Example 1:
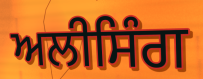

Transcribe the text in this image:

ਅਲੀਸਿੰਗ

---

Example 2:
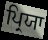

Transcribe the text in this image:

ਪ੍ਰਿਯਾ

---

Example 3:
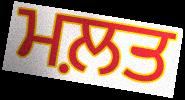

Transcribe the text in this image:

ਮਲ਼ਤ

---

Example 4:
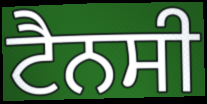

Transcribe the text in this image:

ਟੈਨਸੀ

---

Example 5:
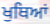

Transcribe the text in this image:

ਖੁਥਿਆਂ